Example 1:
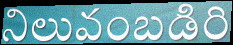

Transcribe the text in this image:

నిలువంబడిరి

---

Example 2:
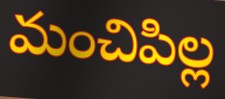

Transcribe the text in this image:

మంచిపిల్ల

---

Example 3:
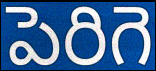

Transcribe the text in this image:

పెరిగె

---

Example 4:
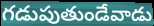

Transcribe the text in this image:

గడుపుతుండేవాడు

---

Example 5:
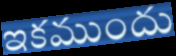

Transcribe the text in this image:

ఇకముందు